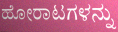
ಹೋರಾಟಗಳನ್ನು